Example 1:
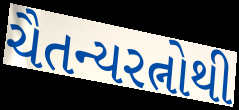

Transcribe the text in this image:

ચૈતન્યરત્નોથી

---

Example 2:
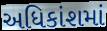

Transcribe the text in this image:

અધિકાંશમાં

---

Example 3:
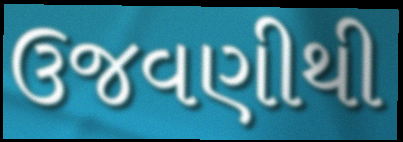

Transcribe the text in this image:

ઉજવણીથી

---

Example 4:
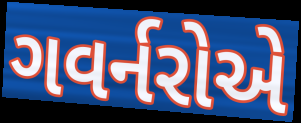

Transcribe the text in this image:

ગવર્નરોએ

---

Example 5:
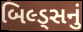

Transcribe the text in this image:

બિલ્ડ્સનું